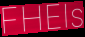
FHEIs